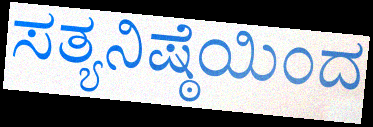
ಸತ್ಯನಿಷ್ಠೆಯಿಂದ